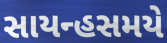
સાયન્હસમયે